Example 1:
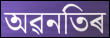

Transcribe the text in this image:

অৱনতিৰ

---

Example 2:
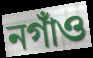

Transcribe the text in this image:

নগাঁও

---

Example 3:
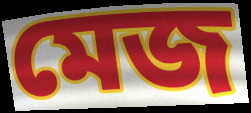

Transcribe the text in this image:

মেজ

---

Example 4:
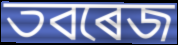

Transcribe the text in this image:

তবৰেজ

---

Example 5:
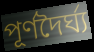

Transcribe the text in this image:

পূৰ্ণদৈৰ্ঘ্য